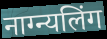
नाग्न्यलिंग